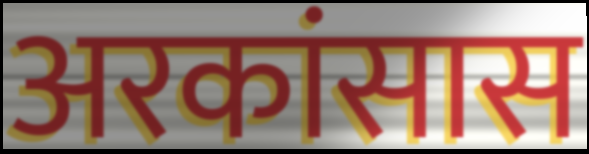
अरकांसास